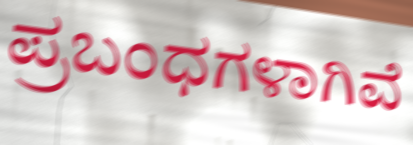
ಪ್ರಬಂಧಗಳಾಗಿವೆ